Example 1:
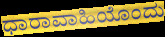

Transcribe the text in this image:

ಧಾರಾವಾಹಿಯೊಂದು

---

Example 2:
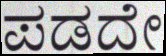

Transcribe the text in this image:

ಪಡದೇ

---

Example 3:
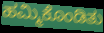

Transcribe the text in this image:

ಹಮ್ಮಿಕೊಂಡಿತು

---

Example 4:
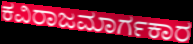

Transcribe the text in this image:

ಕವಿರಾಜಮಾರ್ಗಕಾರ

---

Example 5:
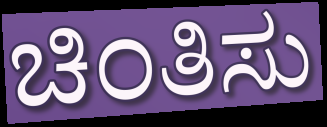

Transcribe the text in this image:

ಚಿಂತಿಸು